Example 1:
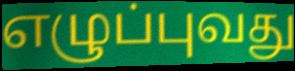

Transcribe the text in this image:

எழுப்புவது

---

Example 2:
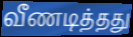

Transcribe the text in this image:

வீணடித்தது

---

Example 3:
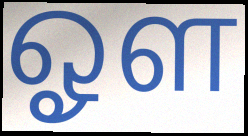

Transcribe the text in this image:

ஓள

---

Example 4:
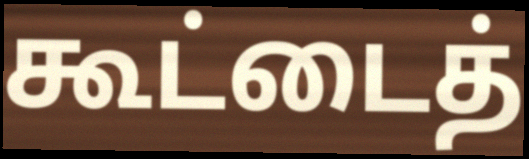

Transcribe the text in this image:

கூட்டைத்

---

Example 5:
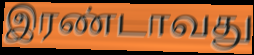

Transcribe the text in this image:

இரண்டாவது